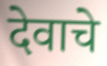
देवाचे